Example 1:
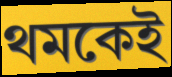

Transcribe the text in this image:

থমকেই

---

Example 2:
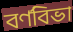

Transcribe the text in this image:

বর্ণবিভা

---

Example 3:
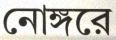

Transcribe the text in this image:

নোঙ্গরে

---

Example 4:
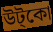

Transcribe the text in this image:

উট্কো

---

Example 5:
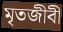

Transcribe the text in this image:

মৃতজীবী